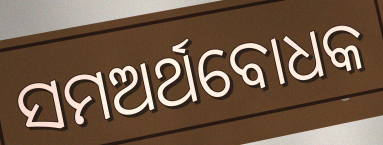
ସମଅର୍ଥବୋଧକ